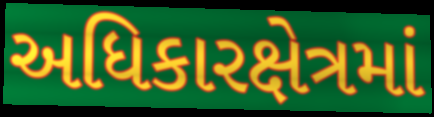
અધિકારક્ષેત્રમાં